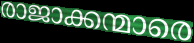
രാജാക്കന്മാരെ